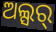
ଅଲ୍ସର୍